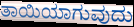
ತಾಯಿಯಾಗುವುದು